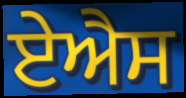
ਏਐਸ